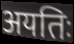
अयतिः